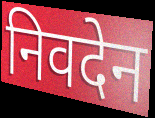
निवदेन